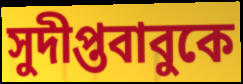
সুদীপ্তবাবুকে